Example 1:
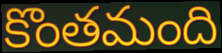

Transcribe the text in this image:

కొంతమంది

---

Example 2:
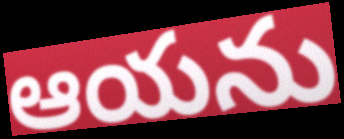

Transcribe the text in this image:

ఆయను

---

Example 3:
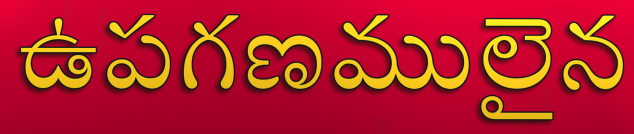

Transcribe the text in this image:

ఉపగణములైన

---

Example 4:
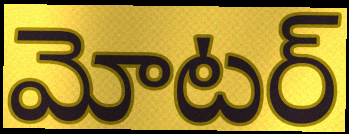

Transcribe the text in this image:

మోటర్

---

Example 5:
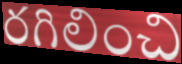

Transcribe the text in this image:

రగిలించి